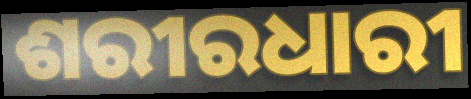
ଶରୀରଧାରୀ